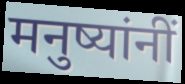
मनुष्यांनीं